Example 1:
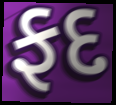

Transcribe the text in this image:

ફદ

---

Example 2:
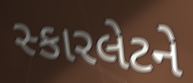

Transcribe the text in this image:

સ્કારલેટને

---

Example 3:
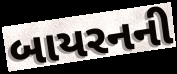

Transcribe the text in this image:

બાયરનની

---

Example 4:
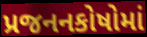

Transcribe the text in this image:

પ્રજનનકોષોમાં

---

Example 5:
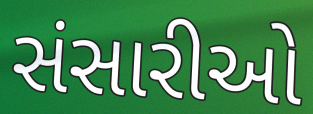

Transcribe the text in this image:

સંસારીઓ